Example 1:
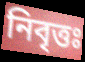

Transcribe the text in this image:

নিবৃত্তঃ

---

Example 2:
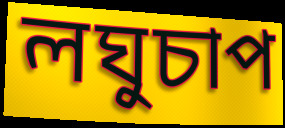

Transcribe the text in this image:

লঘুচাপ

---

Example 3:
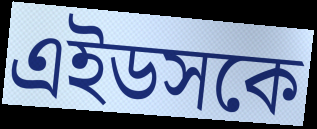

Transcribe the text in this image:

এইডসকে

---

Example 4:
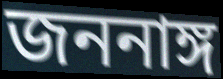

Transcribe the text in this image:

জননাঙ্গ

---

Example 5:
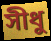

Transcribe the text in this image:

সীধু